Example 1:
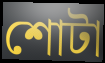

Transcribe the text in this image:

শোটা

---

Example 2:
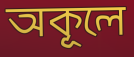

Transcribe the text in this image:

অকূলে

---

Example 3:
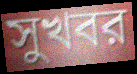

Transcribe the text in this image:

সুখবর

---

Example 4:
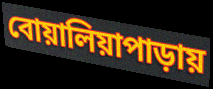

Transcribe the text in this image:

বোয়ালিয়াপাড়ায়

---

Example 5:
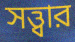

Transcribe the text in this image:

সত্ত্বার